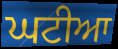
ਘਟੀਆ